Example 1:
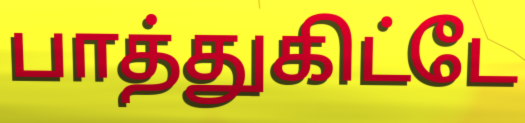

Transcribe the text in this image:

பாத்துகிட்டே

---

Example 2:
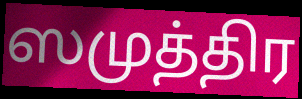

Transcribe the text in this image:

ஸமுத்திர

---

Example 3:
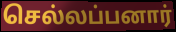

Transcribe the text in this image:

செல்லப்பனார்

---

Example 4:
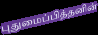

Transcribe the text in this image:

புதுமைப்பித்தனின்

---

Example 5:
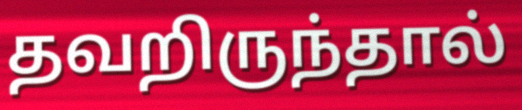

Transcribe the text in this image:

தவறிருந்தால்